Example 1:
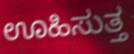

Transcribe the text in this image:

ಊಹಿಸುತ್ತ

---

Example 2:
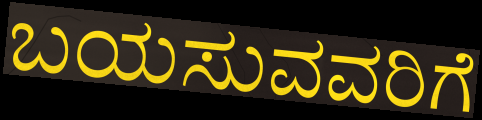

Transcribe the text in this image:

ಬಯಸುವವರಿಗೆ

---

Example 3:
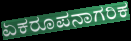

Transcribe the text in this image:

ಏಕರೂಪನಾಗರಿಕ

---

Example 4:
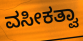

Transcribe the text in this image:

ವಸೀಕತ್ವಾ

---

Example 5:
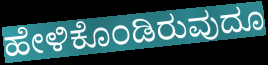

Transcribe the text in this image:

ಹೇಳಿಕೊಂಡಿರುವುದೂ